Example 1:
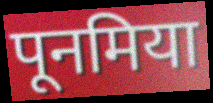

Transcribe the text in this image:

पूनमिया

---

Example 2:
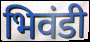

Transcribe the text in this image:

भिवंडी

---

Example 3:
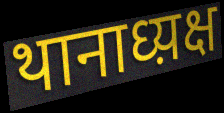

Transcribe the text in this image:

थानाध्य़क्ष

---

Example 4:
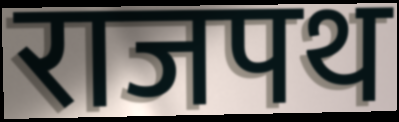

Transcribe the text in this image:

राजपथ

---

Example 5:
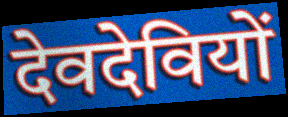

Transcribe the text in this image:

देवदेवियों